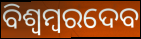
ବିଶ୍ୱମ୍ବରଦେବ